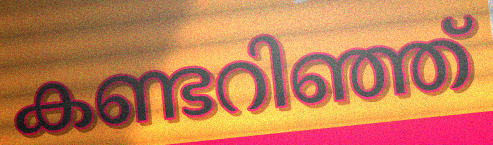
കണ്ടറിഞ്ഞ്